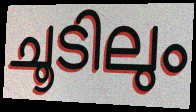
ചൂടിലും